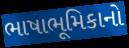
ભાષાભૂમિકાનો